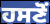
ਹਸਣੋਂ